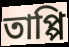
তাপ্পি